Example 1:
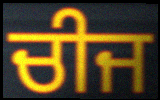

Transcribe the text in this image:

ਚੀਜ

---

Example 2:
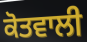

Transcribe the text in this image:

ਕੋਤਵਾਲੀ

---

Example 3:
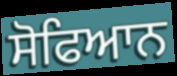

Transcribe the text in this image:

ਸੋਫਿਆਨ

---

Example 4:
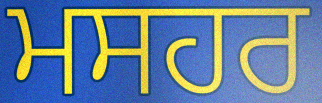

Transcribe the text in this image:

ਮਸਹਰ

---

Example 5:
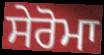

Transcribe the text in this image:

ਸੇਰੋਮਾ